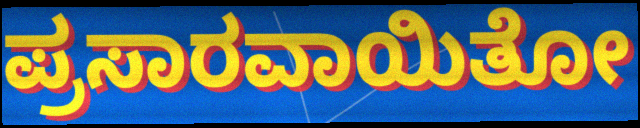
ಪ್ರಸಾರವಾಯಿತೋ